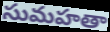
సుమహతా